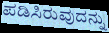
ಪಡಿಸಿರುವುದನ್ನು